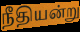
நீதியன்று